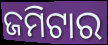
ଜମିଟାର